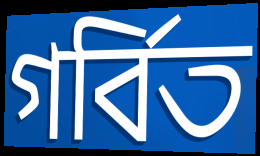
গর্বিত